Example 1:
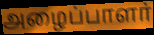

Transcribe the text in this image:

அழைப்பாளர்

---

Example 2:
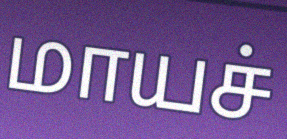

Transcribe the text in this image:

மாயச்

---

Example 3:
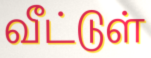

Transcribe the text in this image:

வீட்டுள்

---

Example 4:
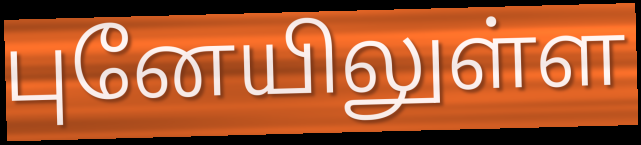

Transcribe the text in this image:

புனேயிலுள்ள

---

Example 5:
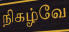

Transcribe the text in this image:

நிகழ்வே